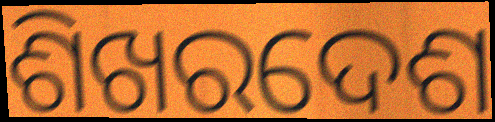
ଶିଖରଦେଶ